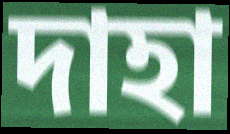
দাহা